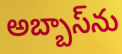
అబ్బాస్‌ను